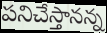
పనిచేస్తానన్న